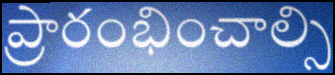
ప్రారంభించాల్సి